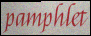
pamphlet